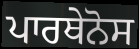
ਪਾਰਥੇਨੋਸ